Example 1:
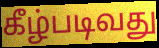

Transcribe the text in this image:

கீழ்படிவது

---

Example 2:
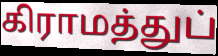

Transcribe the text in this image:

கிராமத்துப்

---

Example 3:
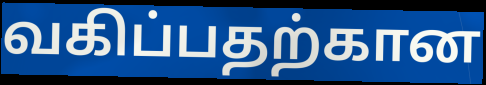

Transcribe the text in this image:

வகிப்பதற்கான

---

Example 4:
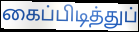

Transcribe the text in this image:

கைப்பிடித்துப்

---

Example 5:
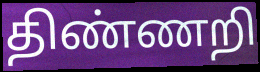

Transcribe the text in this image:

திண்ணறி